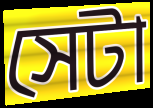
সেটা